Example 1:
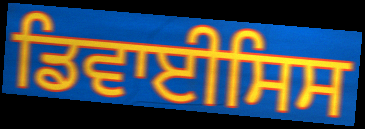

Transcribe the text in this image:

ਡਿਵਾਈਸਿਸ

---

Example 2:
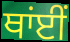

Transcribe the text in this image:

ਥਾਂਈਂ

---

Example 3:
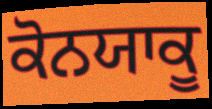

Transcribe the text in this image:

ਕੋਨਯਾਕੂ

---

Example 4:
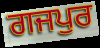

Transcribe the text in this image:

ਗਜਪੁਰ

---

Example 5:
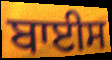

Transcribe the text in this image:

ਬਾਈਸ